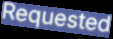
Requested